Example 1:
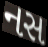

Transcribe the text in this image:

નસ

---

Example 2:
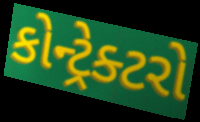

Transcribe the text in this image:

કોન્ટ્રેક્ટરો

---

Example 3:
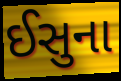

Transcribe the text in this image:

ઈસુના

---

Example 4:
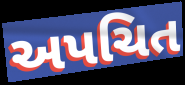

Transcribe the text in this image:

અપચિત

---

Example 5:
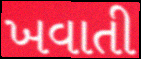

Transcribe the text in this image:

ખવાતી